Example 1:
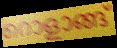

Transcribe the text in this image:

റൊളാങ്ങ്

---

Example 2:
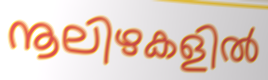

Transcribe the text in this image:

നൂലിഴകളിൽ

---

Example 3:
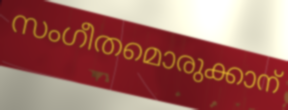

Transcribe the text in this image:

സംഗീതമൊരുക്കാന്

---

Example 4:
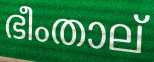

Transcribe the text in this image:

ഭീംതാല്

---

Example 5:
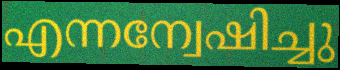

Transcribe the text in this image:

എന്നന്വേഷിച്ചു